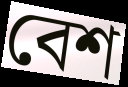
বেশ